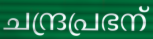
ചന്ദ്രപ്രഭന്